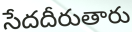
సేదదీరుతారు